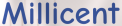
Millicent